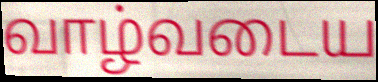
வாழ்வடைய